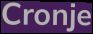
Cronje